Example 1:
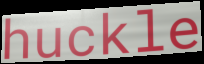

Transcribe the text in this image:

huckle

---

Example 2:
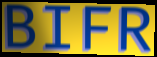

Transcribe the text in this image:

BIFR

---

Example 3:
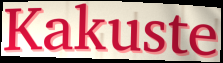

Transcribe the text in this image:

Kakuste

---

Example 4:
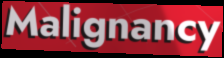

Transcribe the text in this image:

Malignancy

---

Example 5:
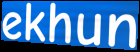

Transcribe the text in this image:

ekhun